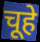
चूहे